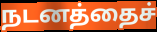
நடனத்தைச்